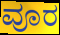
ವೂರ